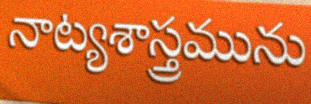
నాట్యశాస్త్రమును